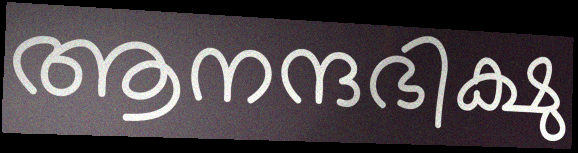
ആനന്ദഭിക്ഷു